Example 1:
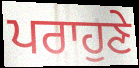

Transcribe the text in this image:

ਪਰਾਹੁਣੇ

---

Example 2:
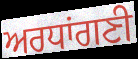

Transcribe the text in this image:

ਅਰਧਾਂਗਣੀ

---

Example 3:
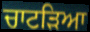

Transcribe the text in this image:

ਚਾਟੜਿਆ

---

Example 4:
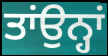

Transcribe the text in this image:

ਤਾਂਉਨ੍ਹਾਂ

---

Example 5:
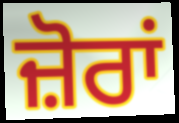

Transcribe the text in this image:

ਜ਼ੋਰਾਂ